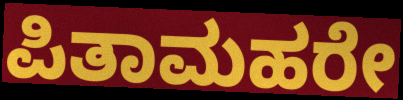
ಪಿತಾಮಹರೇ